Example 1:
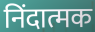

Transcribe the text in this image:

निंदात्मक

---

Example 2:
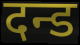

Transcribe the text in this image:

दन्ड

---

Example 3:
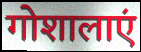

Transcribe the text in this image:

गोशालाएं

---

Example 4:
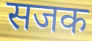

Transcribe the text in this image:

सजक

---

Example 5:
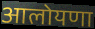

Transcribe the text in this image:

आलोयणा